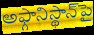
అఫ్గానిస్థాన్‌పై